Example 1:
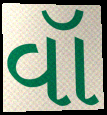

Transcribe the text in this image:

વૉ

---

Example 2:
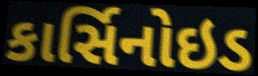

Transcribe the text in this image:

કાર્સિનોઇડ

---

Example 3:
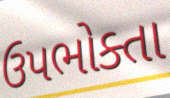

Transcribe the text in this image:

ઉપભોક્તા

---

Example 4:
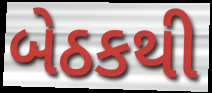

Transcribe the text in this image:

બેઠકથી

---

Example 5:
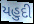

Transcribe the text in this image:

યહુદી